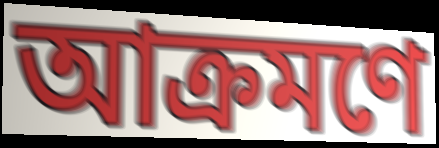
আক্ৰমণে